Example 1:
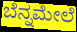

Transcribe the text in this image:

ಬೆನ್ನಮೇಲೆ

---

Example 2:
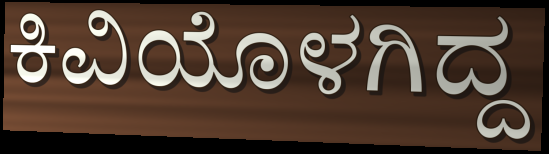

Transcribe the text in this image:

ಕಿವಿಯೊಳಗಿದ್ದ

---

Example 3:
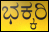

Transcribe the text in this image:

ಭಕ್ಕರಿ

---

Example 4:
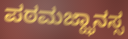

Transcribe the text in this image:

ಪಠಮಜ್ಝಾನಸ್ಸ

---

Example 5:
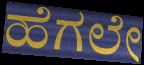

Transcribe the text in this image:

ಹೆಗಲೇ